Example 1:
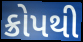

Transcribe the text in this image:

ક્રોપથી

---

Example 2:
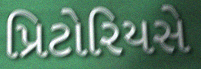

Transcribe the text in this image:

પ્રિટોરિયસે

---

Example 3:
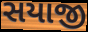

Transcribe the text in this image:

સયાજી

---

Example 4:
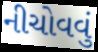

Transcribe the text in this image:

નીચોવવું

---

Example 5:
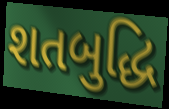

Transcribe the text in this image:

શતબુદ્ધિ